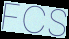
FCS